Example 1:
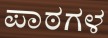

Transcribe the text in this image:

ಪಾಠಗಳ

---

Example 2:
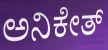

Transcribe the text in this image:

ಅನಿಕೇತ್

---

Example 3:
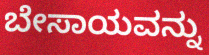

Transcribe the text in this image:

ಬೇಸಾಯವನ್ನು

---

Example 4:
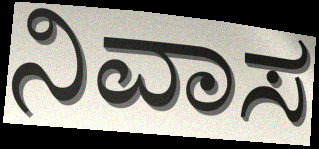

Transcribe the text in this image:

ನಿವಾಸ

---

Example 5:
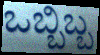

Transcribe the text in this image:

ಒಬ್ಬಿಬ್ಬ